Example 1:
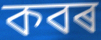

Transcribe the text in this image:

কবৰ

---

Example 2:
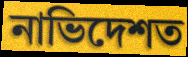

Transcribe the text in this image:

নাভিদেশত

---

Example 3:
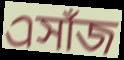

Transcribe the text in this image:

এসাঁজ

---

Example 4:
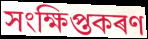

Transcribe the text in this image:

সংক্ষিপ্তকৰণ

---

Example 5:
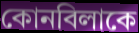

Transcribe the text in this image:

কোনবিলাকে